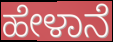
ಹೇಳಾನೆ